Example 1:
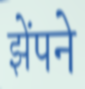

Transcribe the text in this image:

झेंपने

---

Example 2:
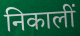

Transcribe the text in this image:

निकालीं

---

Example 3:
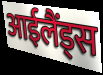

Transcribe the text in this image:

आईलैंड्स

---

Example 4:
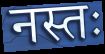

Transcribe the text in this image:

नस्तः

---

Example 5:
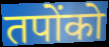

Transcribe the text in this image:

तपोंको